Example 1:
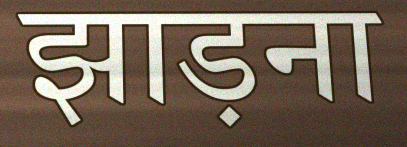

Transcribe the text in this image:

झाड़ना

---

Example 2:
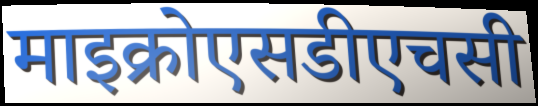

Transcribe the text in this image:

माइक्रोएसडीएचसी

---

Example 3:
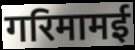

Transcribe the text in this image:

गरिमामई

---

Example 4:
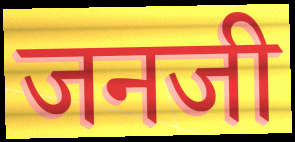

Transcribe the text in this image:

जनजी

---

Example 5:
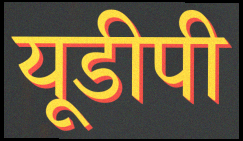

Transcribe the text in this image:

यूडीपी